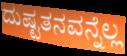
ದುಷ್ಟತನವನ್ನೆಲ್ಲ